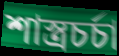
শাস্ত্রচর্চা